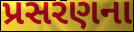
પ્રસરણના